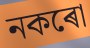
নকৰো